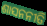
ଶାସନନୀତି